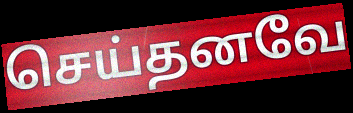
செய்தனவே